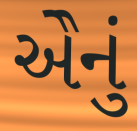
એેનું